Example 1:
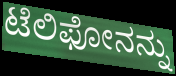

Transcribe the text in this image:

ಟೆಲಿಫೋನನ್ನು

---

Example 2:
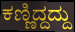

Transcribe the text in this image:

ಕಣ್ಣಿದ್ದದ್ದು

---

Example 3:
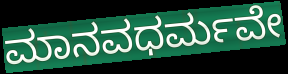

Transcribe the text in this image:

ಮಾನವಧರ್ಮವೇ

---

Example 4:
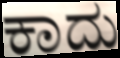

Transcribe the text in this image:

ಕಾದು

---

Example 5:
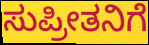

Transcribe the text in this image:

ಸುಪ್ರೀತನಿಗೆ